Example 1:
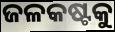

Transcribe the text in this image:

ଜଳକଷ୍ଟକୁ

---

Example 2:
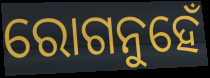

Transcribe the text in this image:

ରୋଗନୁହେଁ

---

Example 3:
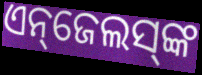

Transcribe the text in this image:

ଏନ୍‌ଜେଲସ୍‌ଙ୍କ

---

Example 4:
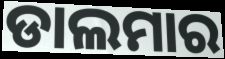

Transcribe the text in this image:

ଡାଲମାର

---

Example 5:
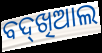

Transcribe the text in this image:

ବଦ୍‌ଖିଆଲ